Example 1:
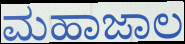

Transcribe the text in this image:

ಮಹಾಜಾಲ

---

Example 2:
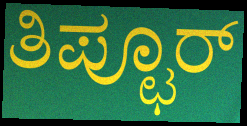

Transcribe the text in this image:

ತಿಪ್ಟೂರ್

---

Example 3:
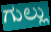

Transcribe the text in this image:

ಗುಲ್ಲು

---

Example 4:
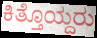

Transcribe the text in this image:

ಕಿತ್ತೊಯ್ದರು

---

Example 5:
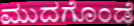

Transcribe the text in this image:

ಮುದಗೊಂಡೆ